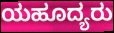
ಯಹೂದ್ಯರು